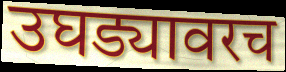
उघड्यावरच